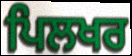
ਪਿਲਖਰ